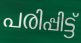
പരിപ്പിട്ട്